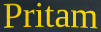
Pritam